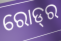
ରୋଡ୍‌ର